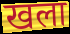
खला